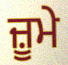
ਜ਼ੂਮੇ